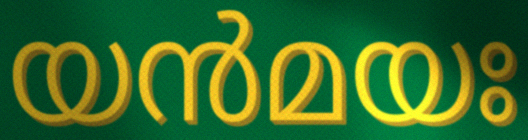
യൻമയഃ